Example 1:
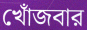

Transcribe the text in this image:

খোঁজবার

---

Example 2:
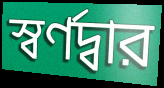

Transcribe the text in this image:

স্বর্ণদ্বার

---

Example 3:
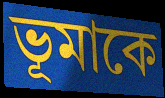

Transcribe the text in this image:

ভূমাকে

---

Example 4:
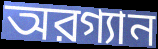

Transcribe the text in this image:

অরগ্যান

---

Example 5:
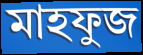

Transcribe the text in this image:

মাহফুজ